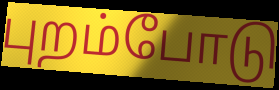
புறம்போடு